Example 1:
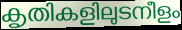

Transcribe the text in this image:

കൃതികളിലുടനീളം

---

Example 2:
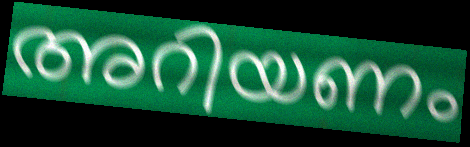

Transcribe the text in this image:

അറിയണം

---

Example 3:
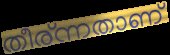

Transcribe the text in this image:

തീര്ന്നതാണ്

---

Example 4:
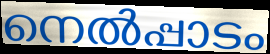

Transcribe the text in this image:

നെൽപ്പാടം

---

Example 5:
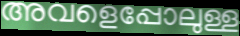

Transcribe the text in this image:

അവളെപ്പോലുള്ള